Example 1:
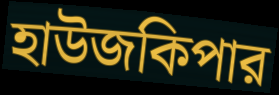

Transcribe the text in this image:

হাউজকিপার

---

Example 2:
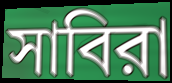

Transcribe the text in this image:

সাবিরা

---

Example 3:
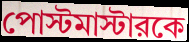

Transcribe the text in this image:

পোস্টমাস্টারকে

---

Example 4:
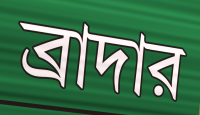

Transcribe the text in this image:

ব্রাদার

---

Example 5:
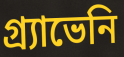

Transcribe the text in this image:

গ্র্যাভেনি